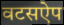
वटसऐप